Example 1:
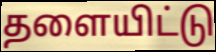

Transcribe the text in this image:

தளையிட்டு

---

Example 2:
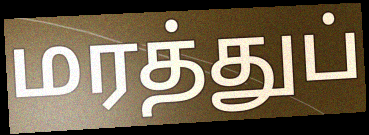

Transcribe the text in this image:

மரத்துப்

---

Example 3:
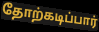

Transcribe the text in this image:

தோற்கடிப்பார்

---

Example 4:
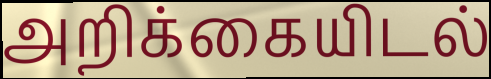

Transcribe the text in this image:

அறிக்கையிடல்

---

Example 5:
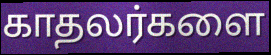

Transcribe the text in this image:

காதலர்களை